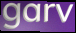
garv